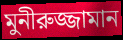
মুনীরুজ্জামান